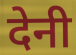
देनी